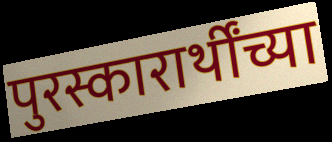
पुरस्कारार्थींच्या